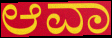
ಆವಾ